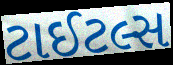
ટાઈટલ્સ